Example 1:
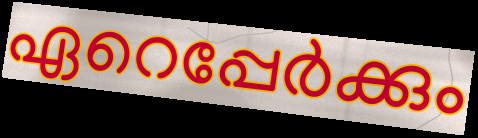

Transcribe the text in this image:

ഏറെപ്പേർക്കും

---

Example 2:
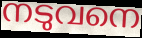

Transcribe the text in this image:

നടുവനെ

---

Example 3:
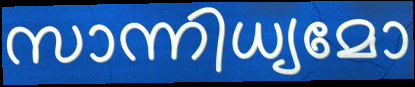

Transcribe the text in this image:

സാന്നിധ്യമോ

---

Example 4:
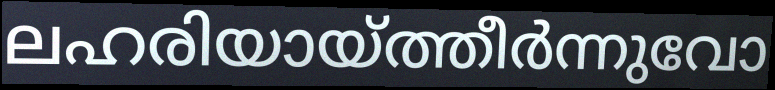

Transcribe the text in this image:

ലഹരിയായ്ത്തീർന്നുവോ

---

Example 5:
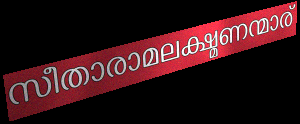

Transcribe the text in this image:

സീതാരാമലക്ഷ്മണന്മാര്